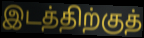
இடத்திற்குத்